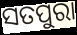
ସତପୁରା